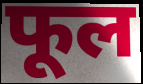
फूल